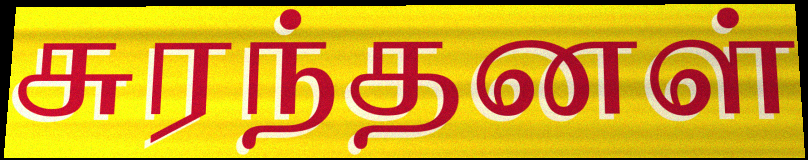
சுரந்தனள்